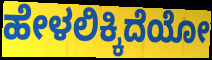
ಹೇಳಲಿಕ್ಕಿದೆಯೋ